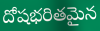
దోషభరితమైన